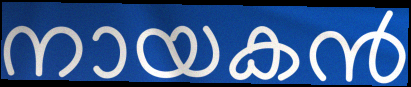
നായകൻ